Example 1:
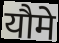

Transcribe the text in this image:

यौमे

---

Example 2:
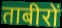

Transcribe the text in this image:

ताबीरों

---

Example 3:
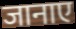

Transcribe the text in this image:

जानाए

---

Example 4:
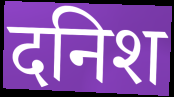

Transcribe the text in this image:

दनिश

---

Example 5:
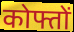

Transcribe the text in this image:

कोफ्तों